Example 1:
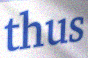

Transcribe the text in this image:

thus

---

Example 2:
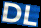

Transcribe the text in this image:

DL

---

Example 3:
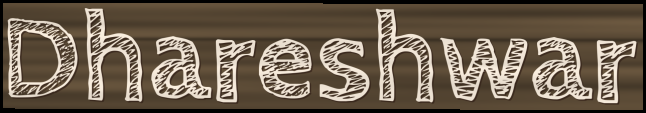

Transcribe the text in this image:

Dhareshwar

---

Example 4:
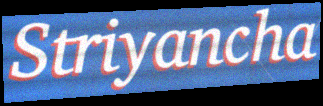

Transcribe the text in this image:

Striyancha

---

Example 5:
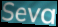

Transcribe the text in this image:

Seva